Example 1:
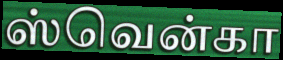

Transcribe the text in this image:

ஸ்வென்கா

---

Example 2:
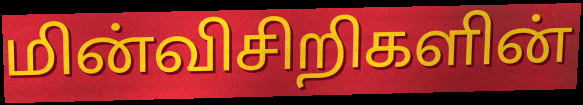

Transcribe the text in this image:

மின்விசிறிகளின்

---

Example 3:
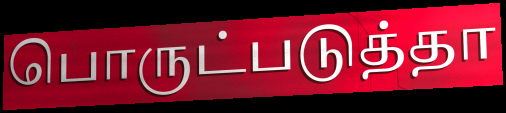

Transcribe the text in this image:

பொருட்படுத்தா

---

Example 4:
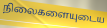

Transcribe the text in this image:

நிலைகளையுடைய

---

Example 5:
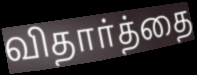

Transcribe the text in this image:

விதார்த்தை